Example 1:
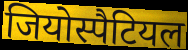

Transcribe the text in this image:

जियोस्पैटियल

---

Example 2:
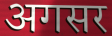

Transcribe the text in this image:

अगसर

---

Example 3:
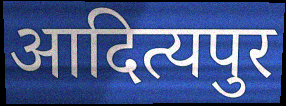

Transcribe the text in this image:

आदित्यपुर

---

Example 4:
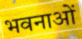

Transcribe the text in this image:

भवनाओं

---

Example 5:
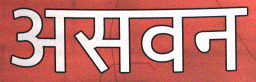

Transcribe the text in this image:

असवन